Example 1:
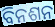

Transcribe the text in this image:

ବିନଶନ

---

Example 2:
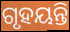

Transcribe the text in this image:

ଗୃହୟନ୍ତି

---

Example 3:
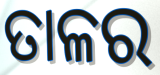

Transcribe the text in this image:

ତାଳର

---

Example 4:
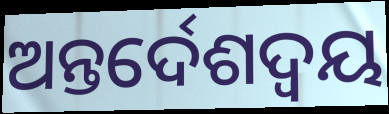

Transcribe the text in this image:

ଅନ୍ତର୍ଦେଶଦ୍ଵୟ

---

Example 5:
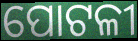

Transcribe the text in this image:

ପୋଟଳୀ